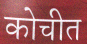
कोचीत